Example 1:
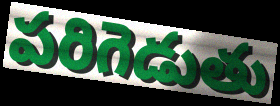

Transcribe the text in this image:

పరిగెడుతు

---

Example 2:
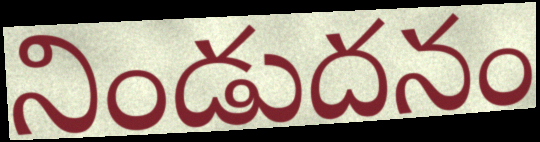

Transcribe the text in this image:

నిండుదనం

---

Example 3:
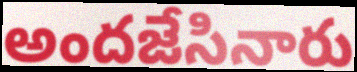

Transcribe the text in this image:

అందజేసినారు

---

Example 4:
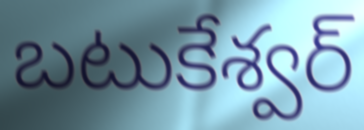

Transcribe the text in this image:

బటుకేశ్వర్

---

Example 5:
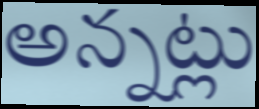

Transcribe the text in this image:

అన్నట్లు